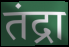
तंद्रा